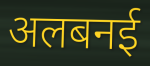
अलबनई